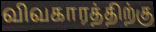
விவகாரத்திற்கு